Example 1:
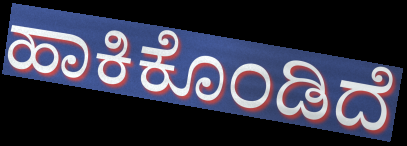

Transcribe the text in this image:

ಹಾಕಿಕೊಂಡಿದೆ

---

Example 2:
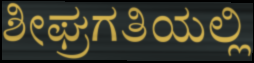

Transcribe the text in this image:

ಶೀಘ್ರಗತಿಯಲ್ಲಿ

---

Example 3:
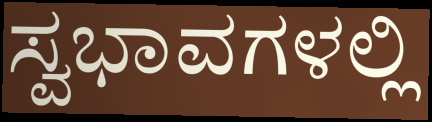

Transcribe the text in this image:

ಸ್ವಭಾವಗಳಲ್ಲಿ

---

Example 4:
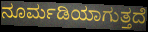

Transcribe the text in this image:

ನೂರ್ಮಡಿಯಾಗುತ್ತದೆ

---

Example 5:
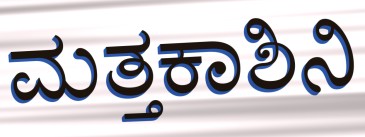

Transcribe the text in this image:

ಮತ್ತಕಾಶಿನಿ